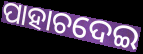
ପାହାଚଦେଇ